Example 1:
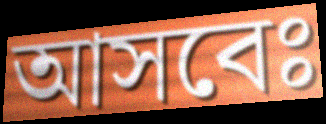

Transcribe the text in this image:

আসবেঃ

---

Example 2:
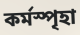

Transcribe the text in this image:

কর্মস্পৃহা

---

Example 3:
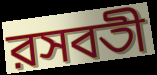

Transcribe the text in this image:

রসবতী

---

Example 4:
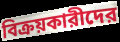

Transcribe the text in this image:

বিক্রয়কারীদের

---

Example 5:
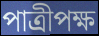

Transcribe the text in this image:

পাত্রীপক্ষ